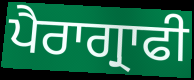
ਪੈਰਾਗ੍ਰਾਫੀ